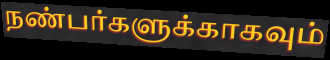
நண்பர்களுக்காகவும்